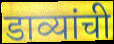
डाव्यांची